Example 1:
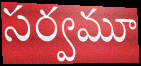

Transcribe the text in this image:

సర్వమూ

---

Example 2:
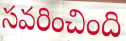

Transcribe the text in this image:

సవరించింది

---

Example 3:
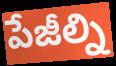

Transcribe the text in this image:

పేజీల్ని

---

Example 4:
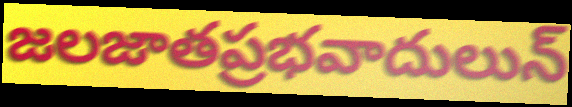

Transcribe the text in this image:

జలజాతప్రభవాదులున్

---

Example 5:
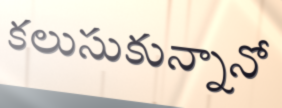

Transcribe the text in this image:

కలుసుకున్నానో